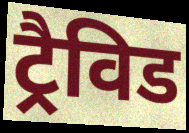
ट्रैविड